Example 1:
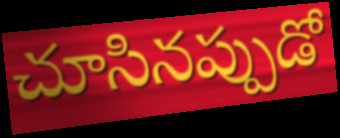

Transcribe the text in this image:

చూసినప్పుడో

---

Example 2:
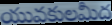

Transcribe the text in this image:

యువకులమీద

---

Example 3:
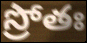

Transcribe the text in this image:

స్రోతః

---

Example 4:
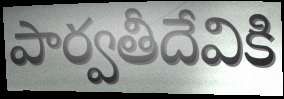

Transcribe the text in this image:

పార్వతీదేవికి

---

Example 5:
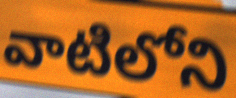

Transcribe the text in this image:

వాటిలోని